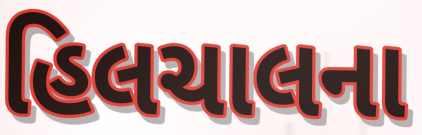
હિલચાલના